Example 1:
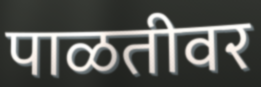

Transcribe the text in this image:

पाळतीवर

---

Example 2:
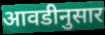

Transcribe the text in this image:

आवडीनुसार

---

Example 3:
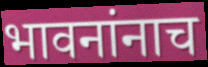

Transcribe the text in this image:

भावनांनाच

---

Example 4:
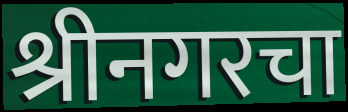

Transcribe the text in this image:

श्रीनगरचा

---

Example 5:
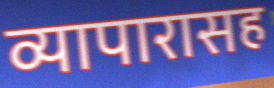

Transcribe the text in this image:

व्यापारासह